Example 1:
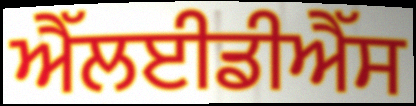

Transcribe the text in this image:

ਐੱਲਈਡੀਐੱਸ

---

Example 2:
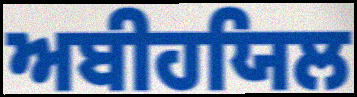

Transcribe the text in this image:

ਅਬੀਹਯਿਲ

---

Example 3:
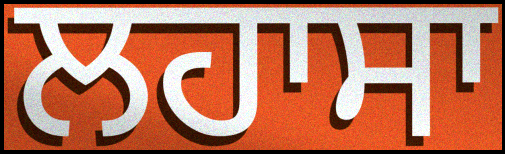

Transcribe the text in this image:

ਲਹਾਸਾ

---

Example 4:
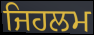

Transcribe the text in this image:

ਜਿਹਲਮ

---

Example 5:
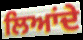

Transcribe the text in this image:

ਲਿਆਂਦੇ